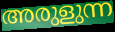
അരുളുന്ന